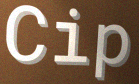
Cip